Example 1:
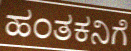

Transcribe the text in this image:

ಹಂತಕನಿಗೆ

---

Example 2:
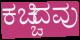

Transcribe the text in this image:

ಕಚ್ಚಿದವು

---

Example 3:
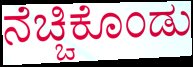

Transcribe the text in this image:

ನೆಚ್ಚಿಕೊಂಡು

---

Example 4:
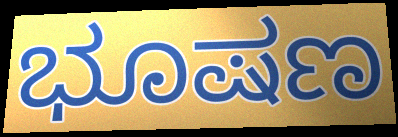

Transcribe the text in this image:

ಭೂಷಣ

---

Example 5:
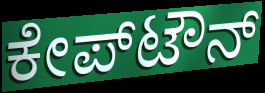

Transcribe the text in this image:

ಕೇಪ್‌ಟೌನ್